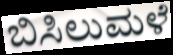
ಬಿಸಿಲುಮಳೆ